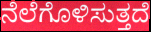
ನೆಲೆಗೊಳಿಸುತ್ತದೆ